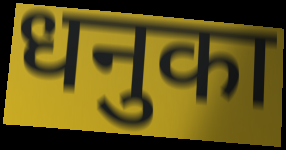
धनुका